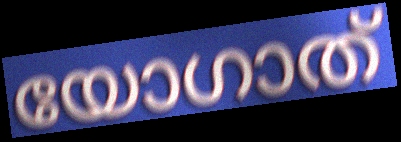
യോഗാത്